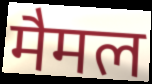
मैमल